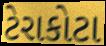
ટેરાકોટા